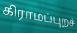
கிராமப்புறச்